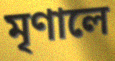
মৃণালে